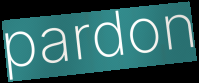
pardon